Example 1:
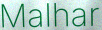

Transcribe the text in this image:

Malhar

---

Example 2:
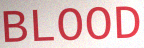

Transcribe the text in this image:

BLOOD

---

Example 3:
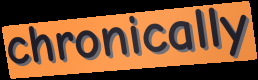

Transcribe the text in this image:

chronically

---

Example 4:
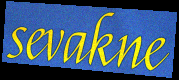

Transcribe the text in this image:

sevakne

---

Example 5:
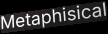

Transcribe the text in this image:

Metaphisical